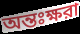
অন্তঃক্ষরা